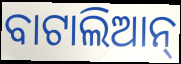
ବାଟାଲିଆନ୍